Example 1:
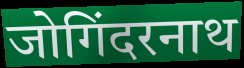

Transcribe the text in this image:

जोगिंदरनाथ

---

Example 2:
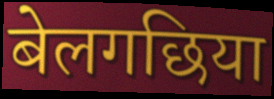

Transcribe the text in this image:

बेलगछिया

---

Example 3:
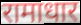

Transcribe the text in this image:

रामाधार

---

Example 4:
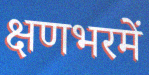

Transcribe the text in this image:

क्षणभरमें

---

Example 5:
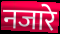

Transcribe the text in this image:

नजारे